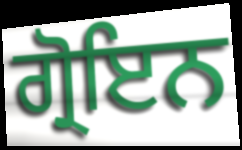
ਗ੍ਰੋਇਨ